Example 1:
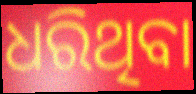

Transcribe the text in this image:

ଧରିଥିବା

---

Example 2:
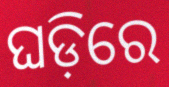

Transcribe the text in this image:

ଘଡ଼ିରେ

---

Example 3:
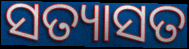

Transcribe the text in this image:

ସତ୍ୟାସତ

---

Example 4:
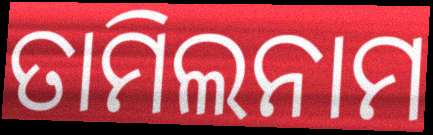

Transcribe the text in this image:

ତାମିଲନାମ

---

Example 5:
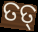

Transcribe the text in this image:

ତତ୍